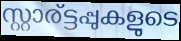
സ്റ്റാര്ട്ടപ്പുകളുടെ